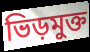
ভিড়মুক্ত